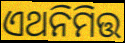
ଏଥନିମିତ୍ତ